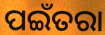
ପଇଁତରା